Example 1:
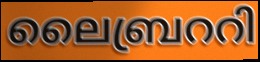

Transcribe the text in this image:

ലൈബ്രററി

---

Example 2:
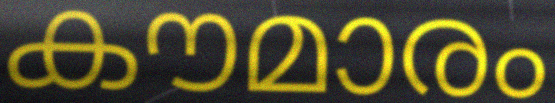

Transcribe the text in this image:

കൗമാരം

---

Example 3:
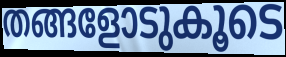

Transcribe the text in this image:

തങ്ങളോടുകൂടെ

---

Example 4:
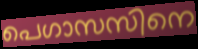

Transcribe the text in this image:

പെഗാസസിനെ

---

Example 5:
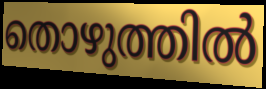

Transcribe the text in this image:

തൊഴുത്തിൽ